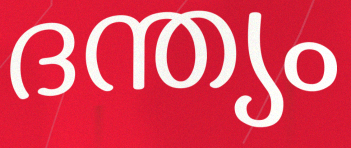
ദന്ത്യം